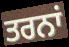
ਤਰਨਾਂ